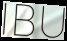
IBU